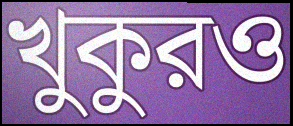
খুকুরও